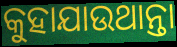
କୁହାଯାଉଥାନ୍ତା